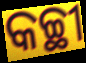
କଚ୍ଛୀ